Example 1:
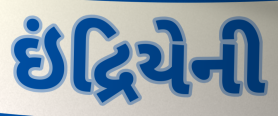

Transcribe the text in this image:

ઇંદ્રિયેની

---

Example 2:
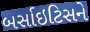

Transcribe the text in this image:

બર્સાઇટિસને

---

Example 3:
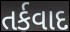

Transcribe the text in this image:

તર્કવાદ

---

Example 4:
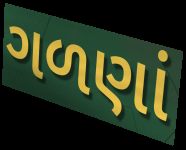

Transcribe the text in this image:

ગળણાં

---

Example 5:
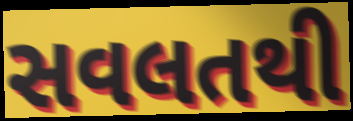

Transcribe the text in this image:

સવલતથી